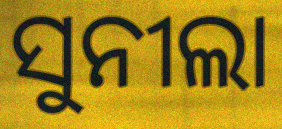
ସୁନୀଲା